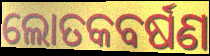
ଲୋତକବର୍ଷଣ